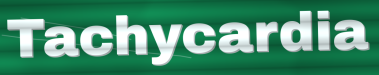
Tachycardia